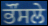
ਭੌਂਸਲੇ